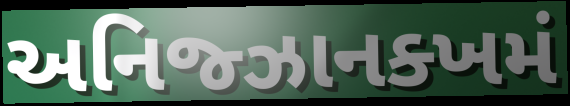
અનિજ્ઝાનક્ખમં